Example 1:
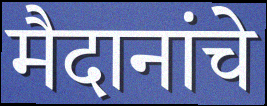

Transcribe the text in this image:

मैदानांचे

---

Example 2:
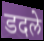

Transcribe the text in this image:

डदले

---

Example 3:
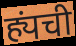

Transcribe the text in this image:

ह्यंची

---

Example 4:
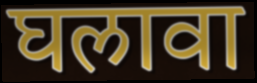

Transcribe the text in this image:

घलावा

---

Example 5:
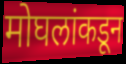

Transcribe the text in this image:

मोघलांकडून